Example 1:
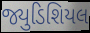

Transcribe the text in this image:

જ્યુડિશિયલ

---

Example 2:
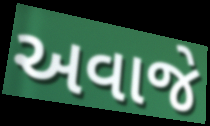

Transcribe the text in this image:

અવાજે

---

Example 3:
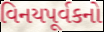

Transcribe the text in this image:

વિનયપૂર્વકનો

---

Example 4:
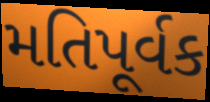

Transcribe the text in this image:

મતિપૂર્વક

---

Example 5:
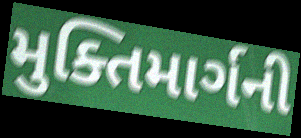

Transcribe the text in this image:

મુક્તિમાર્ગની